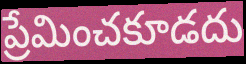
ప్రేమించకూడదు